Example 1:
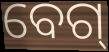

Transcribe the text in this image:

ବେଗ୍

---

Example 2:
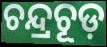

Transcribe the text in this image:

ଚନ୍ଦ୍ରଚୂଡ଼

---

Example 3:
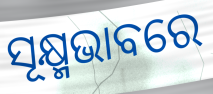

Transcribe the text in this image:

ସୂକ୍ଷ୍ମଭାବରେ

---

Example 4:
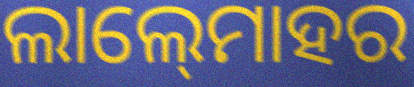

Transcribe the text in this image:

ଲାଲ୍‍ମୋହର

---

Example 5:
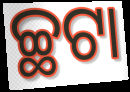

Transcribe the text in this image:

ଚ୍ଛଟା